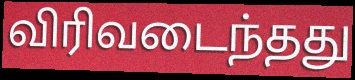
விரிவடைந்தது